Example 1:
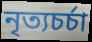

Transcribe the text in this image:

নৃত্যচর্চা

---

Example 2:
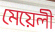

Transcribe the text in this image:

মেয়েলী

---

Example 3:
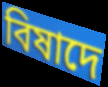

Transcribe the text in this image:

বিষাদে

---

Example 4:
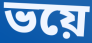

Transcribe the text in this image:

ভয়ে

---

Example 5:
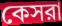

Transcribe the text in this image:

কেসরা